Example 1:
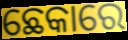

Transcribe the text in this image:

ଛେକାରେ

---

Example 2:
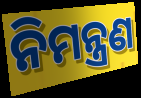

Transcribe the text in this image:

ନିମନ୍ତ୍ରଣ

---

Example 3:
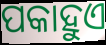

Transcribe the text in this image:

ପକାହୁଏ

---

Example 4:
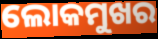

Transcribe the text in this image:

ଲୋକମୁଖର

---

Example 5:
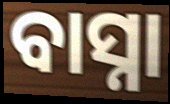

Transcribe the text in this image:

ବାସ୍ନା